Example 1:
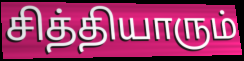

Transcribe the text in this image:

சித்தியாரும்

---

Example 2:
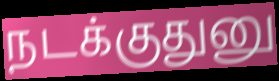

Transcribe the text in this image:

நடக்குதுனு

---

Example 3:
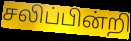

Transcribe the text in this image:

சலிப்பின்றி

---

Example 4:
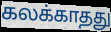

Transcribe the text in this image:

கலக்காதது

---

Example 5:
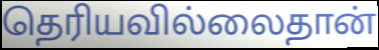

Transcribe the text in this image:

தெரியவில்லைதான்